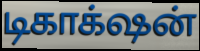
டிகாக்‌ஷன்